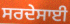
ਸਰਦੇਸਾਈ